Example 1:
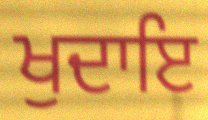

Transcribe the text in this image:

ਖੁਦਾਇ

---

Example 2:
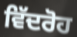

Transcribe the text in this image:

ਵਿੱਦਰੋਹ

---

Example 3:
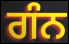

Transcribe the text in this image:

ਗੰਨ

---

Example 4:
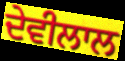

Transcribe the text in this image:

ਦੇਵੀਲਾਲ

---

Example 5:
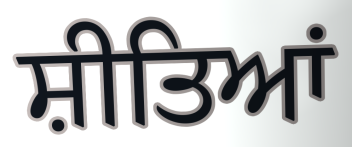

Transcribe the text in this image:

ਸ਼ੀਤਿਆਂ